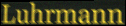
Luhrmann